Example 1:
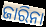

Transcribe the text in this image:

ଜାରିନା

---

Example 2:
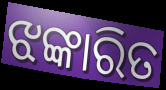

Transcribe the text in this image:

ଝଙ୍କାରିତ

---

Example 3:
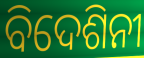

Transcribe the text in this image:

ବିଦେଶିନୀ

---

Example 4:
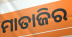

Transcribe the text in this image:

ମାତାଜିର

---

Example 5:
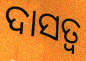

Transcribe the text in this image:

ଦାସତ୍ୱ